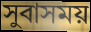
সুবাসময়